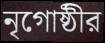
নৃগোষ্ঠীর